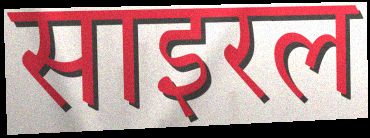
साइरल